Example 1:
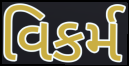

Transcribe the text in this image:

વિકર્મ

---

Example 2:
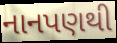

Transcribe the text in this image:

નાનપણથી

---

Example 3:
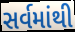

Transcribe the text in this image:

સર્વમાંથી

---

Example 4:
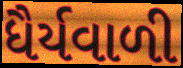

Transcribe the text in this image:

ધૈર્યવાળી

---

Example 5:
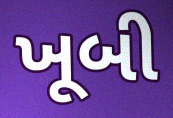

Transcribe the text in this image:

ખૂબી